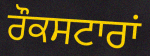
ਰੌਕਸਟਾਰਾਂ